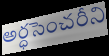
అర్ధసెంచరీని